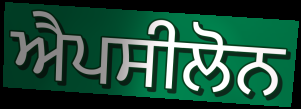
ਐਪਸੀਲੋਨ